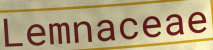
Lemnaceae